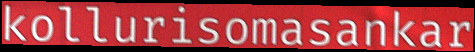
kollurisomasankar